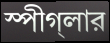
স্পীগ্‌লার